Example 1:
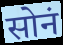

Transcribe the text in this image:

सोनं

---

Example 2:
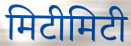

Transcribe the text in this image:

मिटीमिटी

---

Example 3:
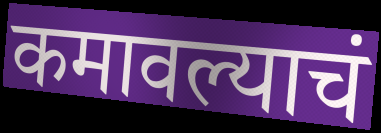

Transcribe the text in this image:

कमावल्याचं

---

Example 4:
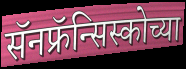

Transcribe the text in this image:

सॅनफ्रॅन्सिस्कोच्या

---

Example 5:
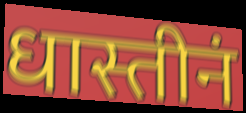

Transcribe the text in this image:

धास्तीनं